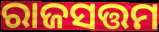
ରାଜସତ୍ତମ